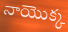
నాయొక్క